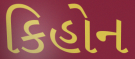
કિહોન